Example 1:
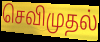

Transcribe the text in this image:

செவிமுதல்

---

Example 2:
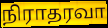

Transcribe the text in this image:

நிராதரவா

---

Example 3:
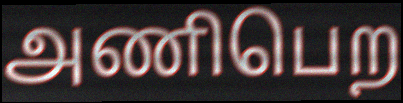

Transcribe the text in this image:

அணிபெற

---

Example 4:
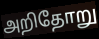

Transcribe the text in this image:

அறிதோறு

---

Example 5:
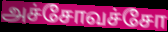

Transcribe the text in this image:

அச்சோவச்சோ